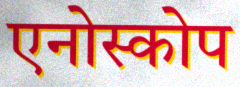
एनोस्कोप